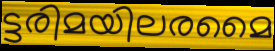
ട്ടരിമയിലരമൈ